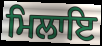
ਮਿਲਾਇ